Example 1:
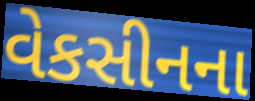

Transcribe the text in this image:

વેકસીનના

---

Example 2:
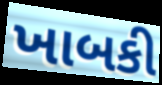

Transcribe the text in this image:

ખાબકી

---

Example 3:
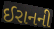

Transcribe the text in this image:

ઈરાનની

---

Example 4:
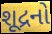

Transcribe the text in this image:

શૂદ્રનો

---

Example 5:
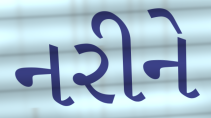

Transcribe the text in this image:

નરીને